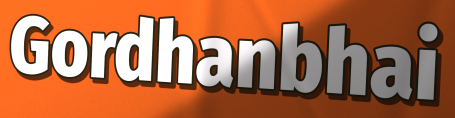
Gordhanbhai